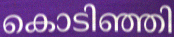
കൊടിഞ്ഞി